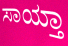
ಸಾಯ್ತಾ